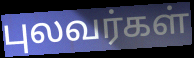
புலவர்கள்